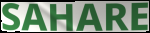
SAHARE